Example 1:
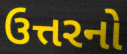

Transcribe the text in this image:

ઉત્તરનો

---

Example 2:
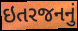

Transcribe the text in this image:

ઇતરજનનું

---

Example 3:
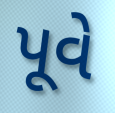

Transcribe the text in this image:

પૂવે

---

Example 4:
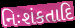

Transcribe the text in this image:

નિઃશંકતાદિ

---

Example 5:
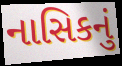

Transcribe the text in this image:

નાસિકનું